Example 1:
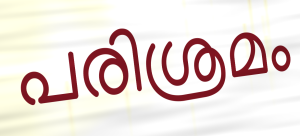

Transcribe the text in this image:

പരിശ്രമം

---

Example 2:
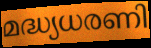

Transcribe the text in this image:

മദ്ധ്യധരണി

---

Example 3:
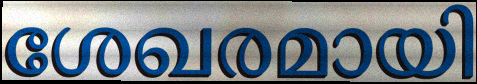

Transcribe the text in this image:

ശേഖരമായി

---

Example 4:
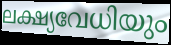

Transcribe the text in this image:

ലക്ഷ്യവേധിയും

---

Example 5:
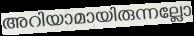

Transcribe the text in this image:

അറിയാമായിരുന്നല്ലോ